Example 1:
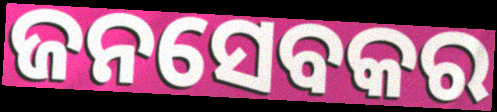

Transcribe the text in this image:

ଜନସେବକର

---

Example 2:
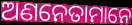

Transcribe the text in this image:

ଅଣନେତାମାନେ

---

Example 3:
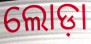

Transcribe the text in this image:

ଲୋଡ଼ା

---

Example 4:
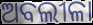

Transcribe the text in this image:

ଅବଲୀଳା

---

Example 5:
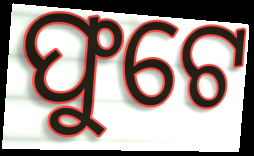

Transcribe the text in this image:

ଫୁଟେ